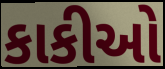
કાકીઓ